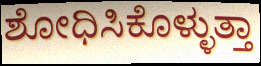
ಶೋಧಿಸಿಕೊಳ್ಳುತ್ತಾ